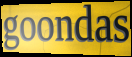
goondas